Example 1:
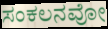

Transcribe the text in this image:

ಸಂಕಲನವೋ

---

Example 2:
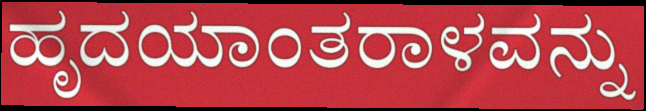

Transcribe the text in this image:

ಹೃದಯಾಂತರಾಳವನ್ನು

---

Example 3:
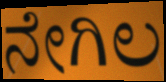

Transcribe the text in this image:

ನೇಗಿಲ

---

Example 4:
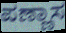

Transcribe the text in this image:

ಪಣ್ಣಾಸ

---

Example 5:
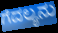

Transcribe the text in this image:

ಗೆದಲ್ಯನು